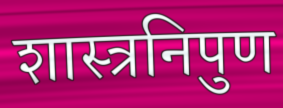
शास्त्रनिपुण